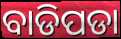
ବାଡିପଡା